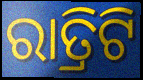
ରାତ୍ରିଟି